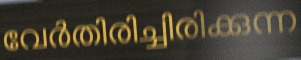
വേർതിരിച്ചിരിക്കുന്ന